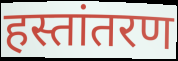
हस्तांतरण